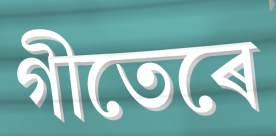
গীতেৰে